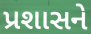
પ્રશાસને